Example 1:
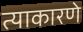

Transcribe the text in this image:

त्याकारणे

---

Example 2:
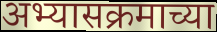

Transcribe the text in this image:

अभ्यासक्रमाच्या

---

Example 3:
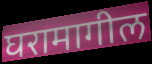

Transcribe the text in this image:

घरामागील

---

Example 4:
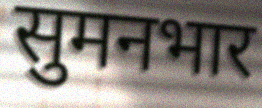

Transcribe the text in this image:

सुमनभार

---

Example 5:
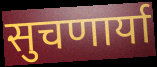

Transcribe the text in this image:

सुचणार्या